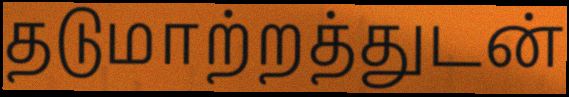
தடுமாற்றத்துடன்